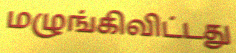
மழுங்கிவிட்டது